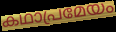
കഥാപ്രമേയം